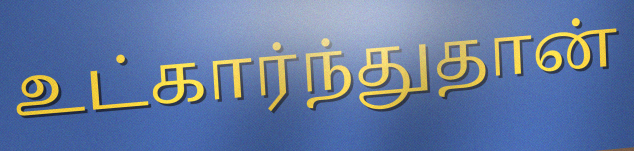
உட்கார்ந்துதான்